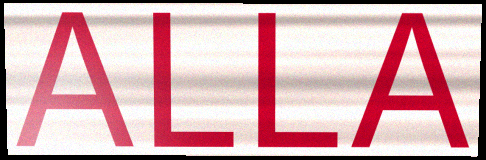
ALLA